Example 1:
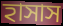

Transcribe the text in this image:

হাসাস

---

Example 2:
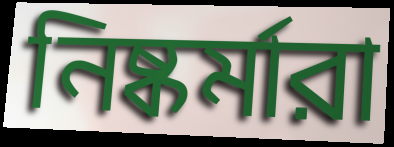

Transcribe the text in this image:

নিষ্কর্মারা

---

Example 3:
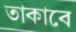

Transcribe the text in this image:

তাকাবে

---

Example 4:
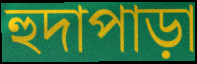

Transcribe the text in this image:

হুদাপাড়া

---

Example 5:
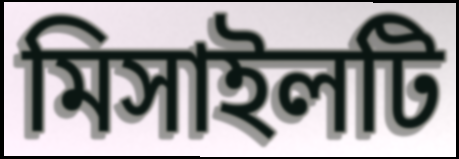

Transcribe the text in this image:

মিসাইলটি